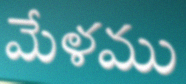
మేళము